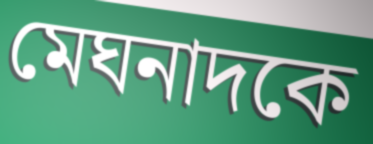
মেঘনাদকে